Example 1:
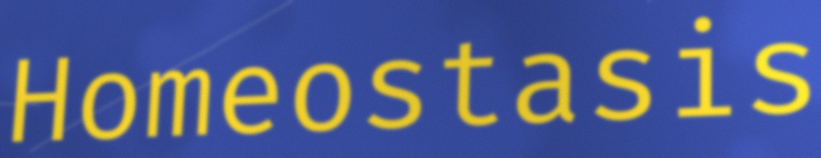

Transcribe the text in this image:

Homeostasis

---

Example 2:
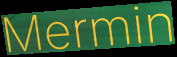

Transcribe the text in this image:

Mermin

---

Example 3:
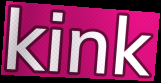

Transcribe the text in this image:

kink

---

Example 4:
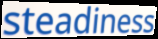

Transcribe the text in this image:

steadiness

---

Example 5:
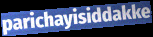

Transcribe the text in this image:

parichayisiddakke